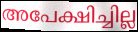
അപേക്ഷിച്ചില്ല